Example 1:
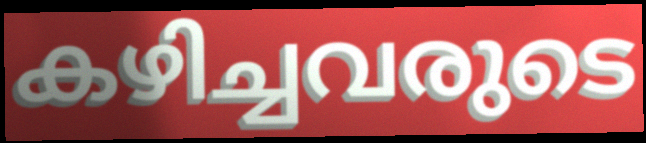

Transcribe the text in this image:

കഴിച്ചവരുടെ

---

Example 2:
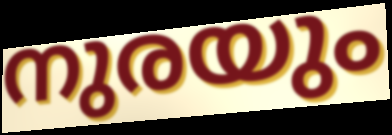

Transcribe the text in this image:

നുരയും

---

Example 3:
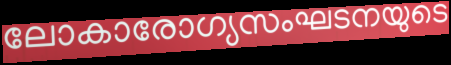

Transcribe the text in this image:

ലോകാരോഗ്യസംഘടനയുടെ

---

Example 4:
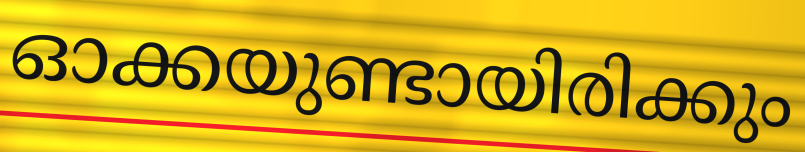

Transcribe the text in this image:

ഓക്കയുണ്ടായിരിക്കും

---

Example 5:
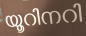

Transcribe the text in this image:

യൂറിനറി